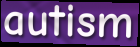
autism